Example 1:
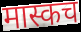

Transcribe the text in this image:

मास्कच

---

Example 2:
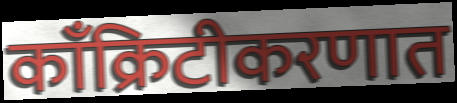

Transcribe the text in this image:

काँक्रिटीकरणात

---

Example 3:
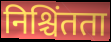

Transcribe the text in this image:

निश्चिंतता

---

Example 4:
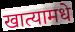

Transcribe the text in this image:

खात्यामधे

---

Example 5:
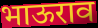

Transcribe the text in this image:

भाऊराव